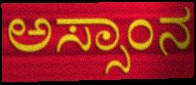
ಅಸ್ಸಾಂನ